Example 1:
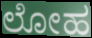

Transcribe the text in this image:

ಲೋಹ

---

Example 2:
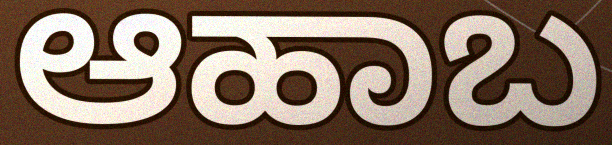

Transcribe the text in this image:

ಆಹಾಬ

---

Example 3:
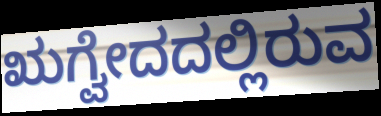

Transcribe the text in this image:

ಋಗ್ವೇದದಲ್ಲಿರುವ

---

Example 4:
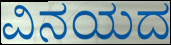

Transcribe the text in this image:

ವಿನಯದ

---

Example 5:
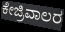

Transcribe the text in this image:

ಕೇಜ್ರಿವಾಲರ